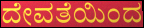
ದೇವತೆಯಿಂದ